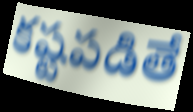
కష్టపడితే